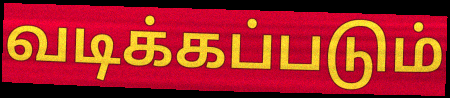
வடிக்கப்படும்